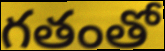
గతంతో